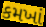
કમખાં